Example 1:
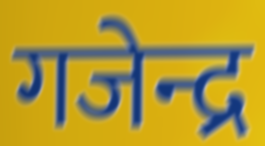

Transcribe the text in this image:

गजेन्‍द्र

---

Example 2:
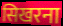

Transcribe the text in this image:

सिखरना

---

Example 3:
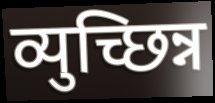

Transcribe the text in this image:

व्युच्छिन्न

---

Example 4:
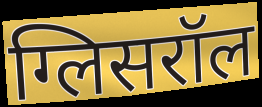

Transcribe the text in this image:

ग्लिसरॉल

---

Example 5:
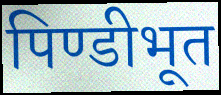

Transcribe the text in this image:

पिण्डीभूत